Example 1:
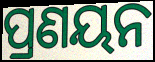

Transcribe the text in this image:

ପ୍ରଣୟନ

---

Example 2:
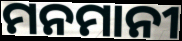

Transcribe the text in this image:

ମନମାନୀ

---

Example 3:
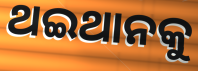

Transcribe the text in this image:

ଥଇଥାନକୁ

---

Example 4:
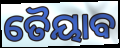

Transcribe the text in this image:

ତୈୟାବ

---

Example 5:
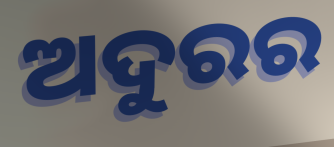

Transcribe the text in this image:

ଅଦୁରର